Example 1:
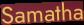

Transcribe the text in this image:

Samatha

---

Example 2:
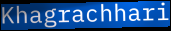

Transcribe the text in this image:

Khagrachhari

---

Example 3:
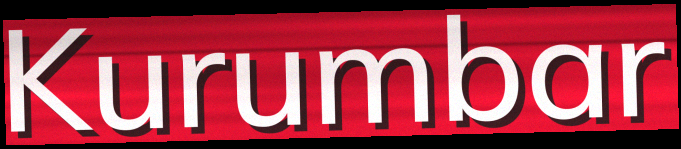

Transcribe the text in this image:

Kurumbar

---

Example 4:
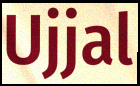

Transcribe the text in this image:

Ujjal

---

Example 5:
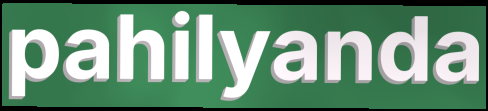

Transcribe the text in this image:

pahilyanda